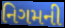
નિગમની